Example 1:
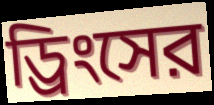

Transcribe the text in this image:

ড্রিংসের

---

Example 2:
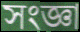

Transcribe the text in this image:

সংজ্ঞা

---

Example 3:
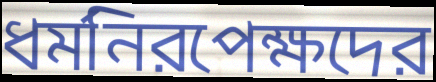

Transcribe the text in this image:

ধর্মনিরপেক্ষদের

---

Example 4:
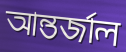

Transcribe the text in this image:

আন্তর্জাল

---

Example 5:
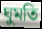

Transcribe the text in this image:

ঘুমতি